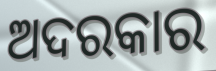
ଅଦରକାର